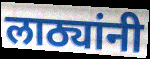
लाठ्यांनी